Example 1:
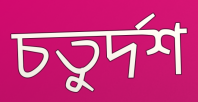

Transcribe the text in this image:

চতুর্দশ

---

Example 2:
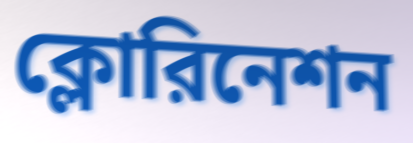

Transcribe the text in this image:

ক্লোরিনেশন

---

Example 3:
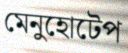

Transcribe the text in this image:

মেনুহোটেপ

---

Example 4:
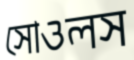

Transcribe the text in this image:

সোওলস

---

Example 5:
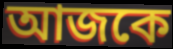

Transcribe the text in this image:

আজকে